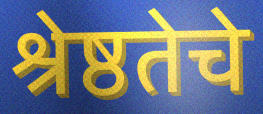
श्रेष्ठतेचे